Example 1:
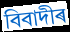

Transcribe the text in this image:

বিবাদীৰ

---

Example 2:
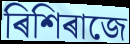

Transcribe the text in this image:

ৰিশিৰাজে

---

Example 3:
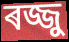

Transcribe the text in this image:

ৰজ্জু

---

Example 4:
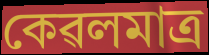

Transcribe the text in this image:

কেৱলমাত্ৰ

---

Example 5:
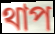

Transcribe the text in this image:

থাপ